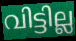
വിട്ടില്ല